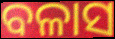
ବଳାସ